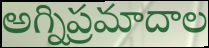
అగ్నిప్రమాదాల